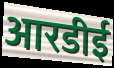
आरडीई